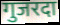
गुजरदा